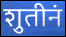
श्रुतीनं